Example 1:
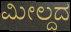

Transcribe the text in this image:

ಮೀಲ್ದದ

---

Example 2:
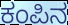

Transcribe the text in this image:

ಕಂಪಿನ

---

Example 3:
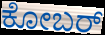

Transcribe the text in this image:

ಕೋಬರ್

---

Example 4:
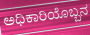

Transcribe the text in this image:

ಅಧಿಕಾರಿಯೊಬ್ಬನ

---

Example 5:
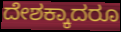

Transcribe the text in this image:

ದೇಶಕ್ಕಾದರೂ